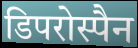
डिपरोस्पैन